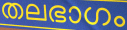
തലഭാഗം